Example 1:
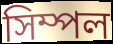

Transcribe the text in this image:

সিম্পল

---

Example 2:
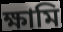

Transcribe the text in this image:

ক্ষামি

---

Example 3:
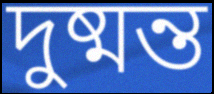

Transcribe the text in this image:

দুষ্মন্ত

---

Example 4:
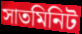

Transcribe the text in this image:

সাতমিনিট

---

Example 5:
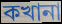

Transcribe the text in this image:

কখানা